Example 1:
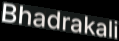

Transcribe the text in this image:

Bhadrakali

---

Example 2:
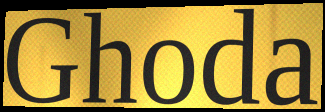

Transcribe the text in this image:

Ghoda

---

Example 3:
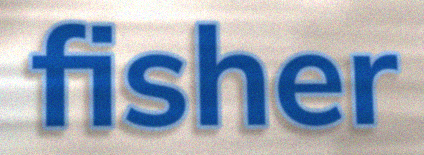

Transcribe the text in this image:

fisher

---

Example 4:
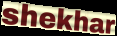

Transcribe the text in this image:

shekhar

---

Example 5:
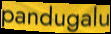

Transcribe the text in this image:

pandugalu